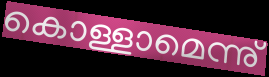
കൊള്ളാമെന്നു്